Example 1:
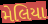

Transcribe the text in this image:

મેલિયા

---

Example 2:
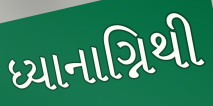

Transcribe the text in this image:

ધ્યાનાગ્નિથી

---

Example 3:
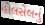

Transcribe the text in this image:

હોલસેલનું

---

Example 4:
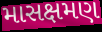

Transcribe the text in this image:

માસક્ષમણ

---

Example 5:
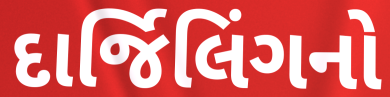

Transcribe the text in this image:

દાર્જિલિંગનો